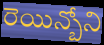
రెయిన్బోని